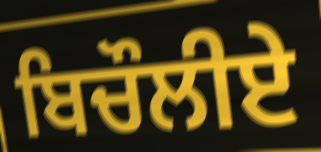
ਬਿਚੌਲੀਏ